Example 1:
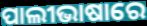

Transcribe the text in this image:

ପାଲୀଭାଷାରେ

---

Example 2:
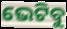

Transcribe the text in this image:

ଭେଟିବୁ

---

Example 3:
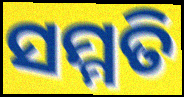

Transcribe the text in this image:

ସମ୍ମତି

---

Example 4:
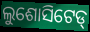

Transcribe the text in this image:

ଲୁଶୋସିଟେଡ୍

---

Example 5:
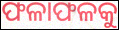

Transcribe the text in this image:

ଫଳାଫଳକୁ